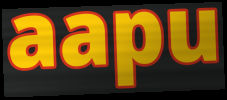
aapu